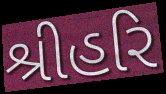
શ્રીહરિ